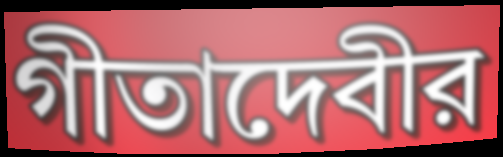
গীতাদেবীর